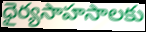
ధైర్యసాహసాలకు